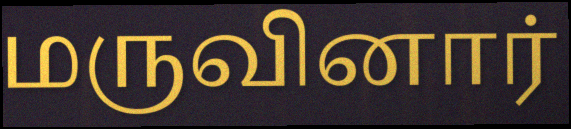
மருவினார்